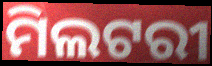
ମିଲଟରୀ